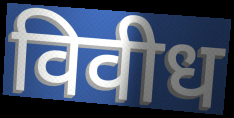
विवीध